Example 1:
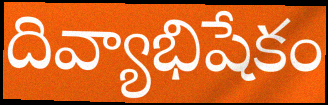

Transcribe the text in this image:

దివ్యాభిషేకం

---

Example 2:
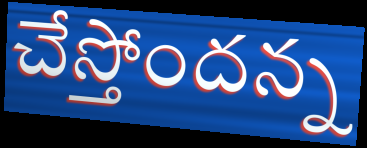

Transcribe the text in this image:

చేస్తోందన్న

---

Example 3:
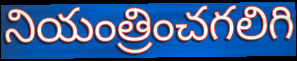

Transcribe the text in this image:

నియంత్రించగలిగి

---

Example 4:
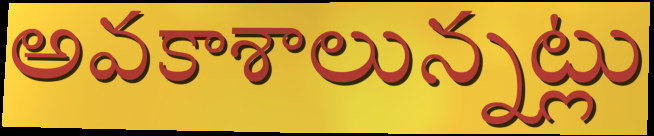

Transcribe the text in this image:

అవకాశాలున్నట్లు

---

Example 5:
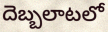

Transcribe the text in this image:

దెబ్బలాటలో